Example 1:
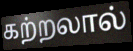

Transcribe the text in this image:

கற்றலால்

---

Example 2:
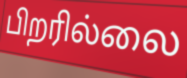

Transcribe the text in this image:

பிறரில்லை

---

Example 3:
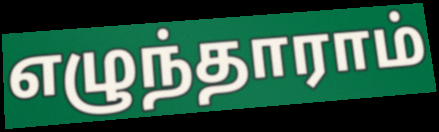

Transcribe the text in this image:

எழுந்தாராம்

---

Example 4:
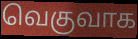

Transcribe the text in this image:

வெகுவாக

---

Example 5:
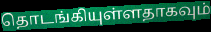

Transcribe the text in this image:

தொடங்கியுள்ளதாகவும்